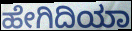
ಹೇಗಿದಿಯಾ